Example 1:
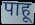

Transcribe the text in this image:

पाहू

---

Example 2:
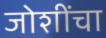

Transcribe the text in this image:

जोशींचा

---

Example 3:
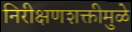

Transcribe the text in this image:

निरीक्षणशक्तीमुळे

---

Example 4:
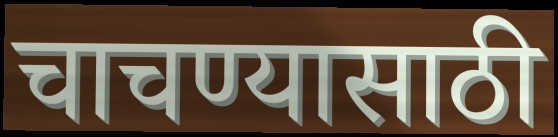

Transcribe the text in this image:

चाचण्यासाठी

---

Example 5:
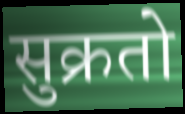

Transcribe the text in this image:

सुक्रतो